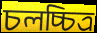
চলচ্চিত্ৰ